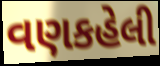
વણકહેલી